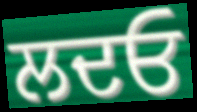
ਲਦਓ